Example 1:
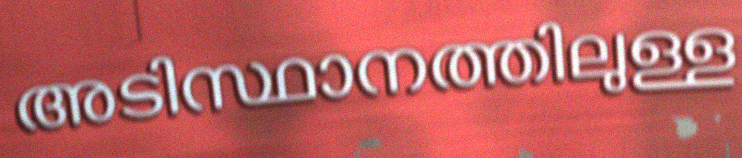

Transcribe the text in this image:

അടിസ്ഥാനത്തിലുള്ള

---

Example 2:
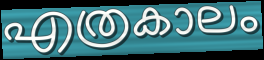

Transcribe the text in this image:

എത്രകാലം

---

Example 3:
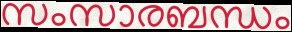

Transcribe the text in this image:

സംസാരബന്ധം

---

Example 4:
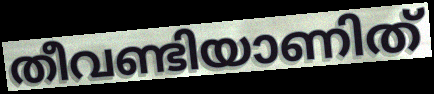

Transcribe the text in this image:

തീവണ്ടിയാണിത്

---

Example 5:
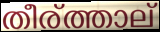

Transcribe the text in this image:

തീര്ത്താല്